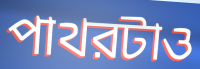
পাথরটাও